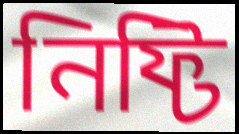
নিফ্টি